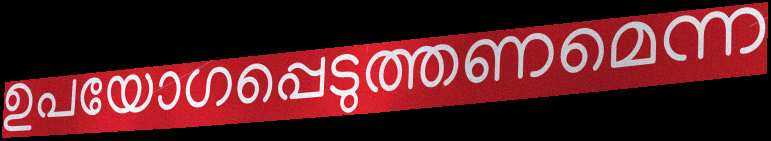
ഉപയോഗപ്പെടുത്തണമെന്ന